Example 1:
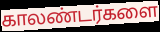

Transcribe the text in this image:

காலண்டர்களை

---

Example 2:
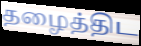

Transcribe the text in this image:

தழைத்திட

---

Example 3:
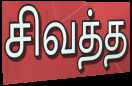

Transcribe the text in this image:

சிவத்த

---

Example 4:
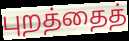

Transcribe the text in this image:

புறத்தைத்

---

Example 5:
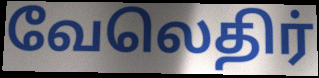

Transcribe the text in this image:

வேலெதிர்